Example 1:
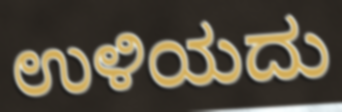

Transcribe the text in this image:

ಉಳಿಯದು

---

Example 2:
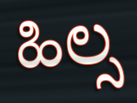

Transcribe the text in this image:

ಹಿಲ್ಸ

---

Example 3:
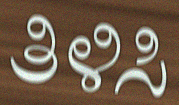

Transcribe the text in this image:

ತಿಳಿಸಿ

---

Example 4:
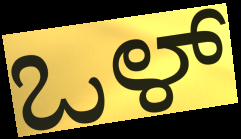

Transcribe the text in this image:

ಒಳ್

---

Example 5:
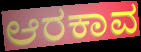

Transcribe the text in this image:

ಆರಕಾವ